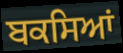
ਬਕਸਿਆਂ